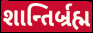
શાન્તિર્બ્રહ્મ